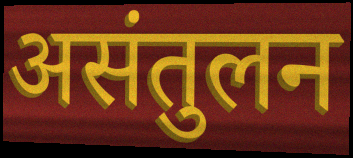
असंतुलन